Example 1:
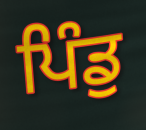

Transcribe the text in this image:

ਪਿੰਡੁ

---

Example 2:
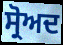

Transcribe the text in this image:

ਸ੍ਰੋਅਦ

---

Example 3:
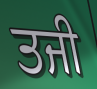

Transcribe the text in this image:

ਤਜੀ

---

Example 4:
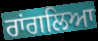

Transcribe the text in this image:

ਰਾਂਗਲਿਆ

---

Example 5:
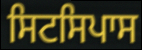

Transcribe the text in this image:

ਸਿਟਸਿਪਾਸ